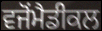
ਵਜੋਂਮੈਡੀਕਲ